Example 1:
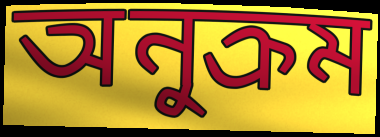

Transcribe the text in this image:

অনুক্ৰম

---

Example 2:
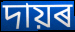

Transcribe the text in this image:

দায়ৰ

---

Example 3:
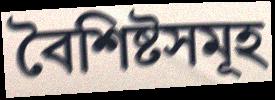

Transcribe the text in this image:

বৈশিষ্টসমূহ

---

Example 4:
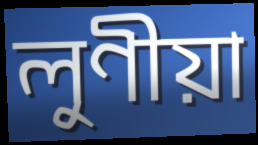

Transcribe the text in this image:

লুণীয়া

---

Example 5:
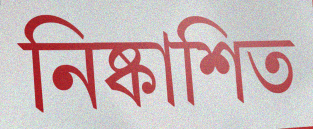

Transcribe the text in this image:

নিষ্কাশিত